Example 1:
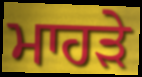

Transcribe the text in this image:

ਮਾਹੜੇ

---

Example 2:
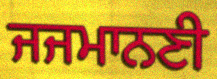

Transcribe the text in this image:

ਜਜਮਾਨਣੀ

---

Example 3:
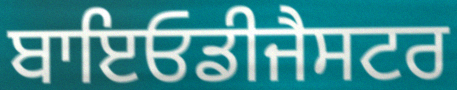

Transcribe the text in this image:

ਬਾਇਓਡੀਜੈਸਟਰ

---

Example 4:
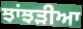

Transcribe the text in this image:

ਝਾਂਝੜੀਆ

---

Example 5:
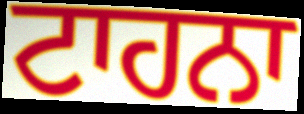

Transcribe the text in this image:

ਟਾਹਨਾ